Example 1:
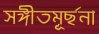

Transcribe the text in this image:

সঙ্গীতমূর্ছনা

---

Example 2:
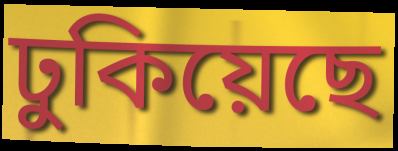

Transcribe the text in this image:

ঢুকিয়েছে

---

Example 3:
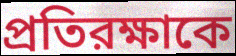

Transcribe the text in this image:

প্রতিরক্ষাকে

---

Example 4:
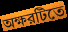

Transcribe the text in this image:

অক্ষরটিতে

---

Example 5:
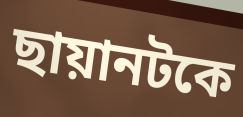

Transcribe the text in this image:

ছায়ানটকে